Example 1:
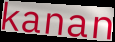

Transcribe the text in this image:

kanan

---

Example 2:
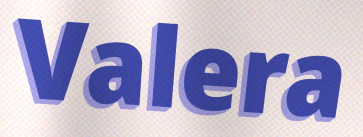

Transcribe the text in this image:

Valera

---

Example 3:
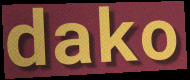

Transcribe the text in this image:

dako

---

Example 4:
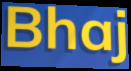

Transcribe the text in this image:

Bhaj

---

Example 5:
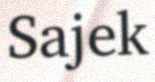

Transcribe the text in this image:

Sajek